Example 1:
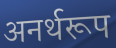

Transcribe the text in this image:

अनर्थरूप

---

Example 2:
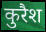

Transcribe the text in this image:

कुरैश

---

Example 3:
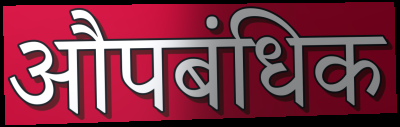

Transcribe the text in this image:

औपबंधिक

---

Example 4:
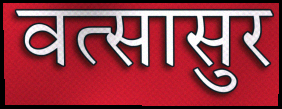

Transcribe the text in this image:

वत्सासुर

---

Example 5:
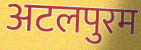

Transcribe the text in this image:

अटलपुरम